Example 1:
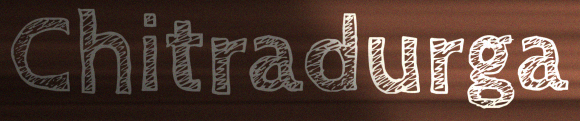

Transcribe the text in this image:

Chitradurga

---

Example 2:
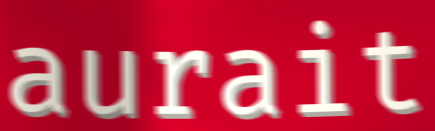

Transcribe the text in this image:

aurait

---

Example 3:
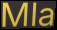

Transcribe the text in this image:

Mla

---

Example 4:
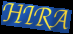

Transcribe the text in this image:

HIRA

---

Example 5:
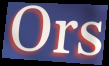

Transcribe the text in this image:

Ors